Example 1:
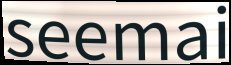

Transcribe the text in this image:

seemai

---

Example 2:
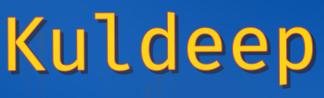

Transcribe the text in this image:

Kuldeep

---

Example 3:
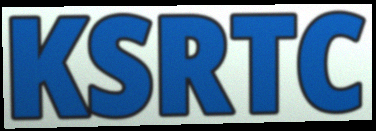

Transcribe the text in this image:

KSRTC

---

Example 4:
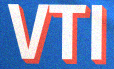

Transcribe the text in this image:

VTI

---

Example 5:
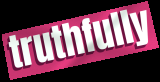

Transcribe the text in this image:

truthfully